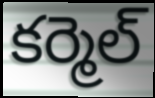
కర్మెల్